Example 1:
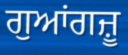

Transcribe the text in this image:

ਗੁਆਂਗਜ਼ੂ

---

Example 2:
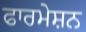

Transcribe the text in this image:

ਫਾਰਮੇਸ਼ਨ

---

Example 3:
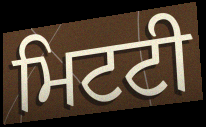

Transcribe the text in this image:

ਮਿਟਟੀ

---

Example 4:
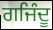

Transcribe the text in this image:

ਗਜਿੰਦੂ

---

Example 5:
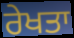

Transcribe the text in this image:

ਰੇਖਤਾ